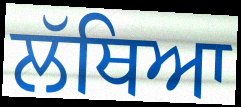
ਲੱਥਿਆ